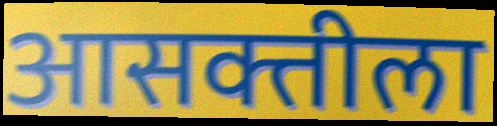
आसक्तीला